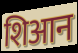
शिआन